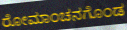
ರೋಮಾಂಚನಗೊಂಡ